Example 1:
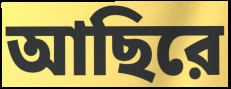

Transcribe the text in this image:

আছিরে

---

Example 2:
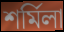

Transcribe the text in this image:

শর্মিলা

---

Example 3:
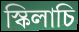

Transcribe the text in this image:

স্কিলাচি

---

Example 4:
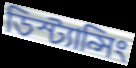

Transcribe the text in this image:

ডিস্ট্যান্সিং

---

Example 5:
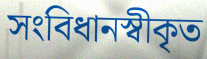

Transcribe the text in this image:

সংবিধানস্বীকৃত